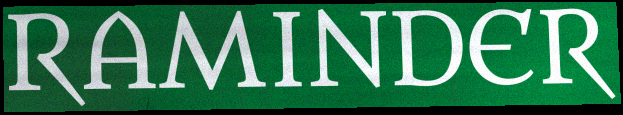
RAMINDER